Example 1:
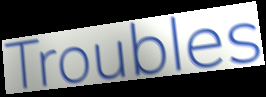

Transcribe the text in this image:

Troubles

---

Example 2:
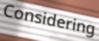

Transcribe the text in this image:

Considering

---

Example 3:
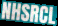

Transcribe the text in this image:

NHSRCL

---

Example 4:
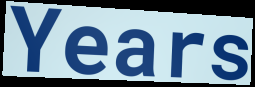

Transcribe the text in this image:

Years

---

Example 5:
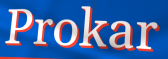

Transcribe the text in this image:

Prokar